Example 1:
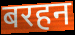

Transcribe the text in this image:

बरहन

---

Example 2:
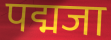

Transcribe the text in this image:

पद्मजा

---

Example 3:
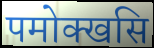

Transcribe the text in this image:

पमोक्खसि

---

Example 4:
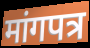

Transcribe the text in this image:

मांगपत्र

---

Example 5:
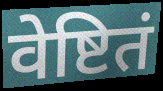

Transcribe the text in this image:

वेष्टितं